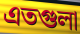
এতগুলা